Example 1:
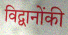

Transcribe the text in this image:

विद्वानोंकी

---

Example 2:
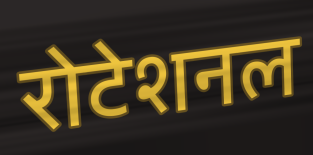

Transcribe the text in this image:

रोटेशनल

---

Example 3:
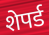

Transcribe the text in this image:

शेपर्ड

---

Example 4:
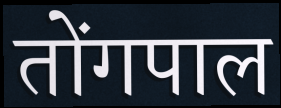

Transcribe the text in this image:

तोंगपाल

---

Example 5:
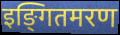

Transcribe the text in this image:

इङ्गितमरण